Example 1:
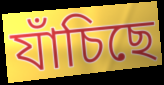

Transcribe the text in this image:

যাঁচিছে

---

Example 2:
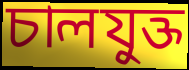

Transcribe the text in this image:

চালযুক্ত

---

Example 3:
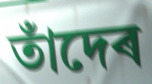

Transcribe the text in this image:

তাঁদেৰ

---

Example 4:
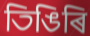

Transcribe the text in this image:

তিঙিৰি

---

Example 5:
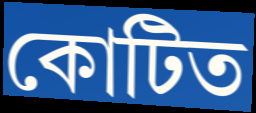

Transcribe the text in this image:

কোটিত